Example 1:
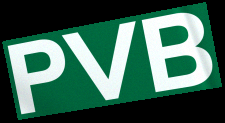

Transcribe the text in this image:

PVB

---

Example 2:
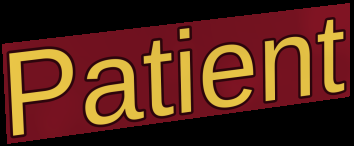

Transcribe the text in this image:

Patient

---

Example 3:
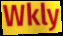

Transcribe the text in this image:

Wkly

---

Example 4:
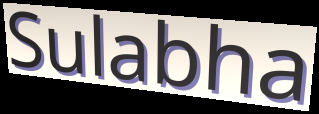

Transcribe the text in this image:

Sulabha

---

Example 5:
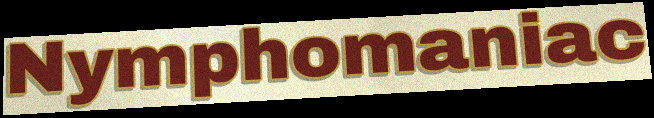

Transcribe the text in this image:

Nymphomaniac